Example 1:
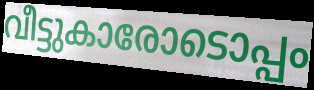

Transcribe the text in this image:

വീട്ടുകാരോടൊപ്പം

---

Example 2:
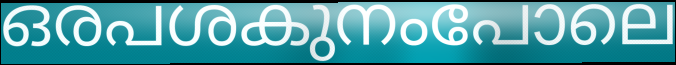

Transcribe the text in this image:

ഒരപശകുനംപോലെ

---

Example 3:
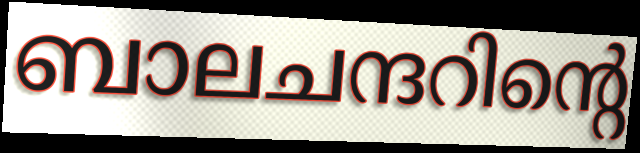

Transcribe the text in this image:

ബാലചന്ദറിന്റെ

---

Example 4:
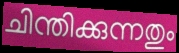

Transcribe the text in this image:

ചിന്തിക്കുന്നതും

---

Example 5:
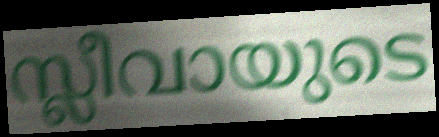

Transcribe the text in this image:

സ്ലീവായുടെ